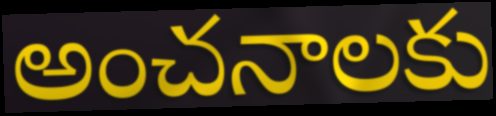
అంచనాలకు